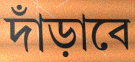
দাঁড়াবে